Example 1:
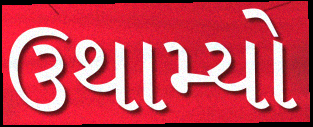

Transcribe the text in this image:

ઉથામ્યો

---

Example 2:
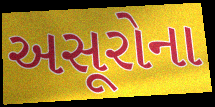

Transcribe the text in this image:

અસૂરોના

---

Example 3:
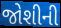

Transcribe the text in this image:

જોશીની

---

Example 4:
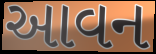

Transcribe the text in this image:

આવન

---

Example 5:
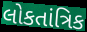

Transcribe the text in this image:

લોકતાંત્રિક